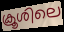
ക്രൂശിലെ